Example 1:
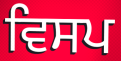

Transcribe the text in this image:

ਵਿਸਪ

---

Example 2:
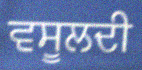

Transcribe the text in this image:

ਵਸੂਲਦੀ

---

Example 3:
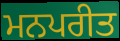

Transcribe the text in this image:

ਮਨਪਰੀਤ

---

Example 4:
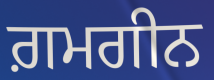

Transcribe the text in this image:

ਗ਼ਮਗੀਨ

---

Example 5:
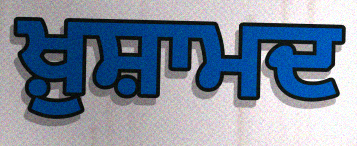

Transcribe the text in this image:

ਖ਼ੁਸ਼ਾਮਦ